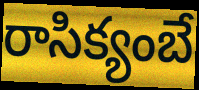
రాసిక్యంబే